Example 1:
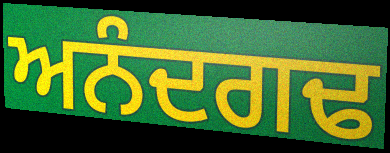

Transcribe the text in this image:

ਅਨੰਦਗਢ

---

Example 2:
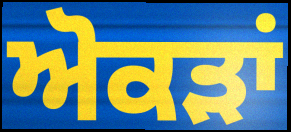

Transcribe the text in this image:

ਅੋਕੜਾਂ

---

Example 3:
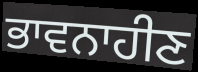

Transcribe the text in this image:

ਭਾਵਨਾਹੀਣ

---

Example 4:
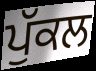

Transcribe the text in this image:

ਪੁੱਕਲ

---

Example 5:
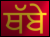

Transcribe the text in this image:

ਥੱਬੇ